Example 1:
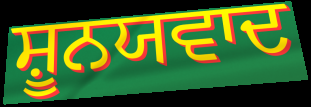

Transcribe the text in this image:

ਸ਼ੂਨਯਵਾਦ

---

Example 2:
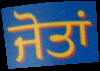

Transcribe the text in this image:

ਜੋਤਾਂ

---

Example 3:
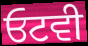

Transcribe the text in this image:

ਓਟਵੀ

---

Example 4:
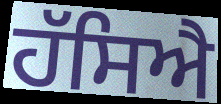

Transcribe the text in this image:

ਹੱਸਿਐ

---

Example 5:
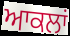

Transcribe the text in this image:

ਆਕਲਾਂ